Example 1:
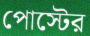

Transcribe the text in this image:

পোস্টের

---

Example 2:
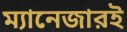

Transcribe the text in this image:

ম্যানেজারই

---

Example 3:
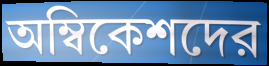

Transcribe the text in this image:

অম্বিকেশদের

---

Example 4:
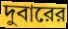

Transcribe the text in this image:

দুবারের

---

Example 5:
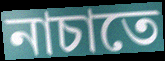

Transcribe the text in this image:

নাচাতে